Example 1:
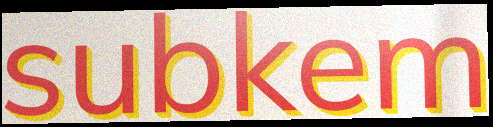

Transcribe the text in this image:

subkem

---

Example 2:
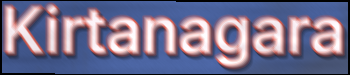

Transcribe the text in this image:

Kirtanagara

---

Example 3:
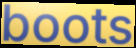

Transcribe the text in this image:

boots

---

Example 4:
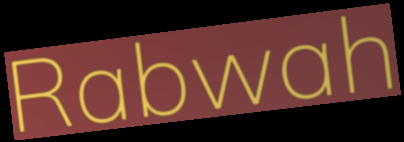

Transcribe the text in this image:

Rabwah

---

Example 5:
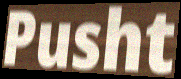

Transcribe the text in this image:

Pusht